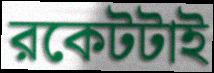
রকেটটাই